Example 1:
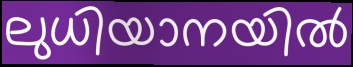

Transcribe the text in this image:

ലുധിയാനയിൽ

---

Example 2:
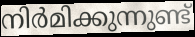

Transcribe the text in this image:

നിർമിക്കുന്നുണ്ട്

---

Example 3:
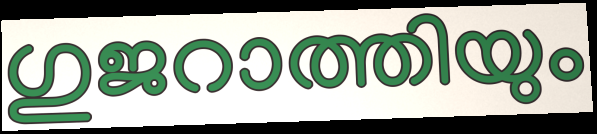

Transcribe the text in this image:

ഗുജറാത്തിയും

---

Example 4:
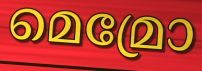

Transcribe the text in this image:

മെമ്രോ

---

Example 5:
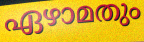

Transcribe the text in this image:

ഏഴാമതും